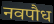
नवपौध